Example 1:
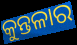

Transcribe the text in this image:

କୁନ୍ତଳାର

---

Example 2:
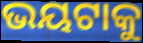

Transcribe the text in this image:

ଭୟଟାକୁ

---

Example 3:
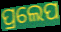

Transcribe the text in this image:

ପ୍ରଲେପ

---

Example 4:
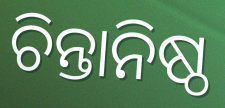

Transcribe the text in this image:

ଚିନ୍ତାନିଷ୍ଠ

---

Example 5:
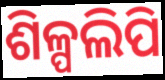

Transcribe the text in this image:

ଶିଳ୍ପଲିପି